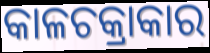
କାଳଚକ୍ରାକାର